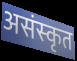
असंस्कृत